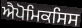
ਐਪੋਮਿਕਸਿਸ